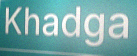
Khadga